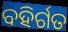
ବହିର୍ଗତ